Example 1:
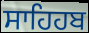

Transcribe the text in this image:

ਸਾਹਿਹਬ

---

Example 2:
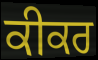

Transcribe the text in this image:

ਕੀਕਰ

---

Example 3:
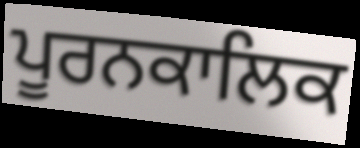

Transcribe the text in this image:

ਪੂਰਨਕਾਲਿਕ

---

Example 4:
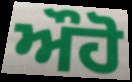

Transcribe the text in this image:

ਔਹੋ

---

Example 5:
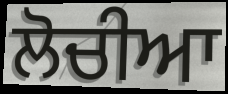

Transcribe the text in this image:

ਲੋਚੀਆ